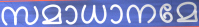
സമാധാനമേ